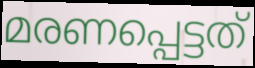
മരണപ്പെട്ടത്